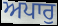
ਅਪਾਰੁ